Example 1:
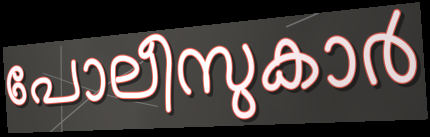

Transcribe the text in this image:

പോലീസുകാർ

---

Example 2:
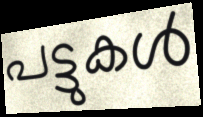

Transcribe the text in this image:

പട്ടുകൾ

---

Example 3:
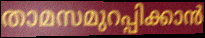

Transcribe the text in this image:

താമസമുറപ്പിക്കാൻ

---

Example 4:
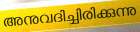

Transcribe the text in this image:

അനുവദിച്ചിരിക്കുന്നു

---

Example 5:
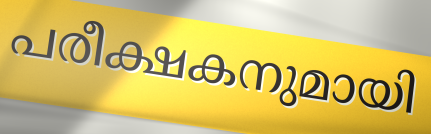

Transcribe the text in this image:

പരീക്ഷകനുമായി